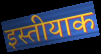
इस्तीयाक